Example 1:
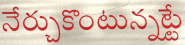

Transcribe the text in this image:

నేర్చుకొంటున్నట్టే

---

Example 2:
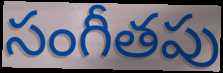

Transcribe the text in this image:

సంగీతపు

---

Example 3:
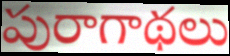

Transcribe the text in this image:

పురాగాథలు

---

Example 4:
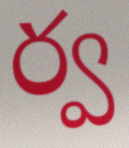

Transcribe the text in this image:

ర్వ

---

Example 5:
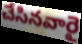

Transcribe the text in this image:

చేసినవారై